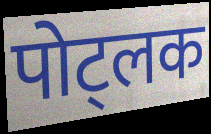
पोट्लक